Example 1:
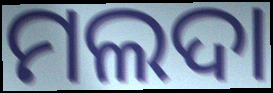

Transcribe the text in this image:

ମଲଦା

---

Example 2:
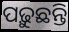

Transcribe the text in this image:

ପଢ଼ୁଛନ୍ତି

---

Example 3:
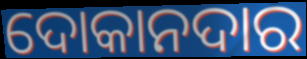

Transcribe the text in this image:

ଦୋକାନଦାର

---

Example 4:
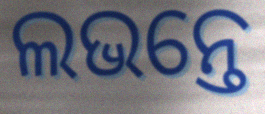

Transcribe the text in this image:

ଲଭନ୍ତେ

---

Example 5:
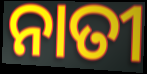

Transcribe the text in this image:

ନାତୀ